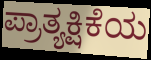
ಪ್ರಾತ್ಯಕ್ಷಿಕೆಯ